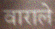
वाराले